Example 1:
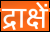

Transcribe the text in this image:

द्राक्षें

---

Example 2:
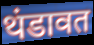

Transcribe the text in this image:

थंडावत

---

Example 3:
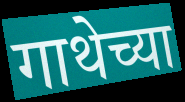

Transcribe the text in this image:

गाथेच्या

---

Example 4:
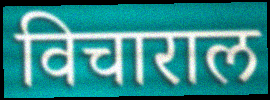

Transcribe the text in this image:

विचाराल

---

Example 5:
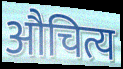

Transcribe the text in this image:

औचित्य